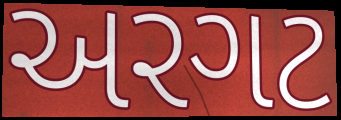
અરગટ